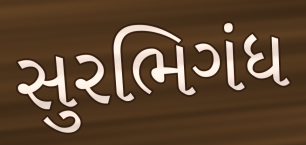
સુરભિગંધ